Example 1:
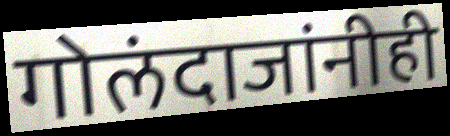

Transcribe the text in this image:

गोलंदाजांनीही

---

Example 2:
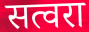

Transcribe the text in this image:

सत्वरा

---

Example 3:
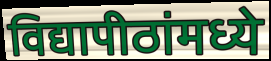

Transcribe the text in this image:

विद्यापीठांमध्ये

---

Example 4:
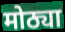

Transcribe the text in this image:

मोठ्या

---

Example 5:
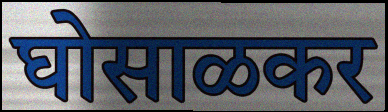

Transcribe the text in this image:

घोसाळकर